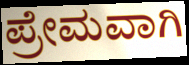
ಪ್ರೇಮವಾಗಿ